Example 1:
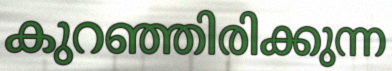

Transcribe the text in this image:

കുറഞ്ഞിരിക്കുന്ന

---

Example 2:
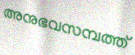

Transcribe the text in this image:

അനുഭവസമ്പത്ത്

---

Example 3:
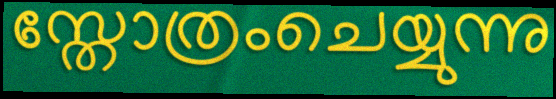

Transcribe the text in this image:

സ്തോത്രംചെയ്യുന്നു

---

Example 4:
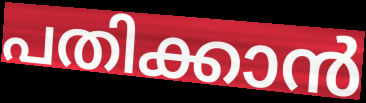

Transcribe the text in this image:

പതിക്കാൻ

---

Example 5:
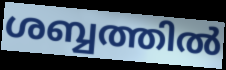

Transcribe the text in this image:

ശബ്ബത്തിൽ